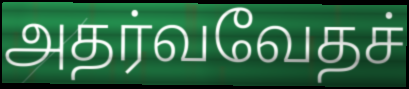
அதர்வவேதச்